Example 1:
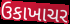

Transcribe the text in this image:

ઉકાખાચર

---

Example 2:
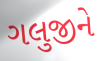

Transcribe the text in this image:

ગલુજીને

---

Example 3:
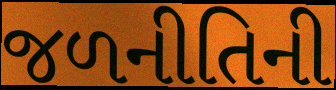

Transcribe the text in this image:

જળનીતિની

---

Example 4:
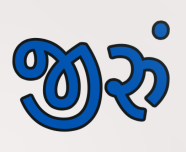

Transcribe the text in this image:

જીરું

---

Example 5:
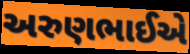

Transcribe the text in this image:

અરુણભાઈએ